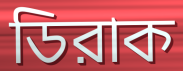
ডিরাক